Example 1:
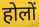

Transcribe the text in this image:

होलों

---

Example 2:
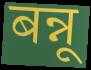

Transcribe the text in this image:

बन्नू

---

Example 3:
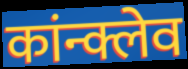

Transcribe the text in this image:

कांन्क्लेव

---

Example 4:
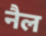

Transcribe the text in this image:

नैल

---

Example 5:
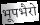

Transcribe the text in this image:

भूपभैरो